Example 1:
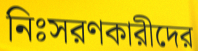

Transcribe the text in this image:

নিঃসরণকারীদের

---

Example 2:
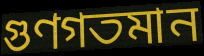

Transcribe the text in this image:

গুণগতমান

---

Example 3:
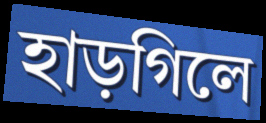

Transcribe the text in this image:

হাড়গিলে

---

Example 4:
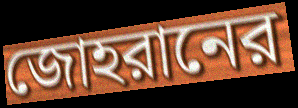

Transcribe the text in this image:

জোহরানের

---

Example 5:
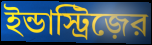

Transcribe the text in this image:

ইন্ডাস্ট্রিজ়ের